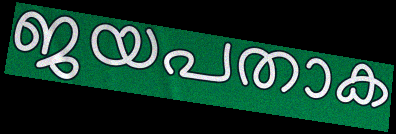
ജയപതാക